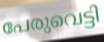
പേരുവെട്ടി